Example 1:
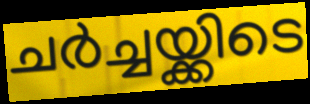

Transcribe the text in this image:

ചർച്ചയ്ക്കിടെ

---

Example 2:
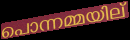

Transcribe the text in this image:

പൊന്നമ്മയില്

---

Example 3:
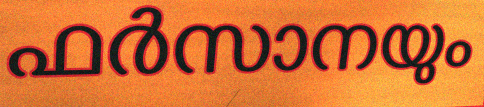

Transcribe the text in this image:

ഫർസാനയും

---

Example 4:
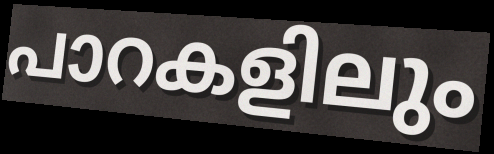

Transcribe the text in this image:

പാറകളിലും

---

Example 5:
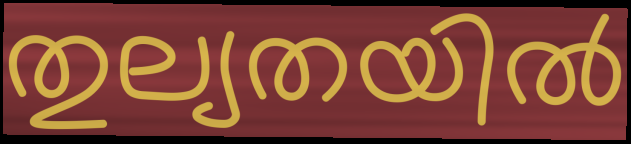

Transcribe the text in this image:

തുല്യതയിൽ